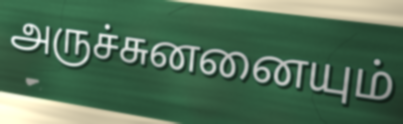
அருச்சுனனையும்